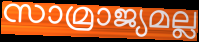
സാമ്രാജ്യമല്ല